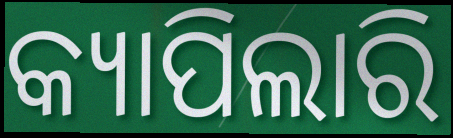
କ୍ୟାପିଲାରି